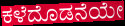
ಕಳೆದೊಡನೆಯೇ